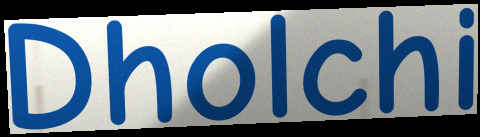
Dholchi